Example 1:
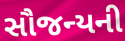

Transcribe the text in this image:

સૌજન્યની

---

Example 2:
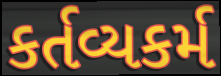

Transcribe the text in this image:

કર્તવ્યકર્મ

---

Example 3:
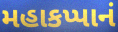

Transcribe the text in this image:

મહાકપ્પાનં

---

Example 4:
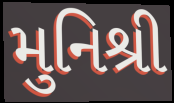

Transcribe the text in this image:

મુનિશ્રી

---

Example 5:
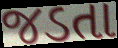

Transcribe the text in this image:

જડતા